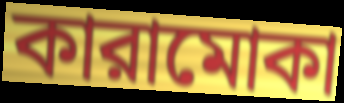
কারামোকা